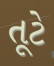
તૂટે